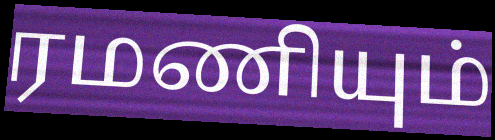
ரமணியும்